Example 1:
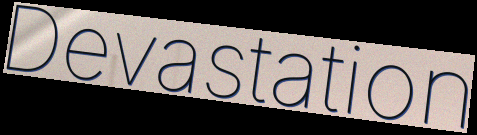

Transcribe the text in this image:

Devastation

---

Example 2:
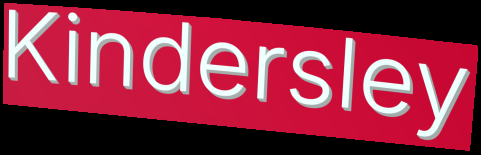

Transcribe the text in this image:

Kindersley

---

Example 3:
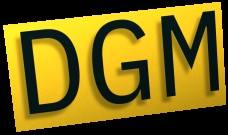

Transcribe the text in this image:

DGM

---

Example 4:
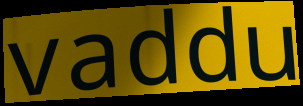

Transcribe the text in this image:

vaddu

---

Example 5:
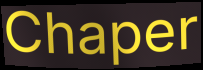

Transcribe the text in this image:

Chaper